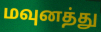
மவுனத்து